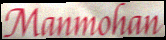
Manmohan